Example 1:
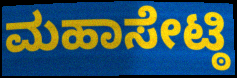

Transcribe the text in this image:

ಮಹಾಸೇಟ್ಠಿ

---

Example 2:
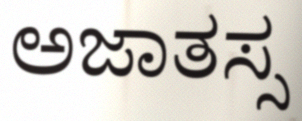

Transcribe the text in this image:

ಅಜಾತಸ್ಸ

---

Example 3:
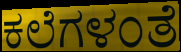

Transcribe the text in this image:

ಕಲೆಗಳಂತೆ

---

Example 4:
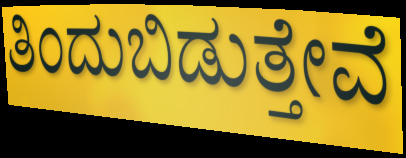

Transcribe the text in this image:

ತಿಂದುಬಿಡುತ್ತೇವೆ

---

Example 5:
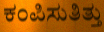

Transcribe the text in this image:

ಕಂಪಿಸುತಿತ್ತು